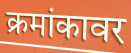
क्रमांकावर